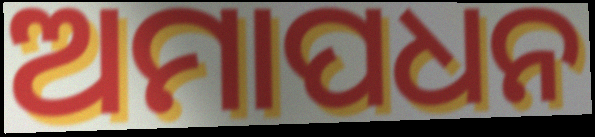
ଅମାପଧନ